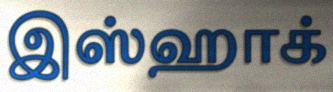
இஸ்ஹாக்